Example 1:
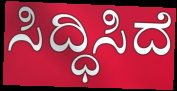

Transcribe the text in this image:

ಸಿದ್ಧಿಸಿದೆ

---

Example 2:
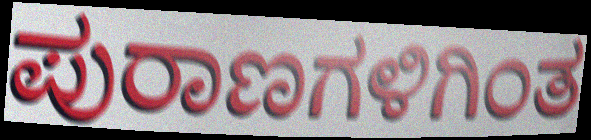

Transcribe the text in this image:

ಪುರಾಣಗಳಿಗಿಂತ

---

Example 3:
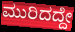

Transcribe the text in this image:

ಮುರಿದದ್ದೇ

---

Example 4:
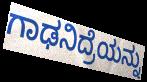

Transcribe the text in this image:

ಗಾಢನಿದ್ರೆಯನ್ನು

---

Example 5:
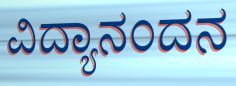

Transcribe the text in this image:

ವಿದ್ಯಾನಂದನ